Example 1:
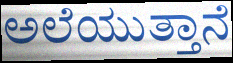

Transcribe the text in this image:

ಅಲೆಯುತ್ತಾನೆ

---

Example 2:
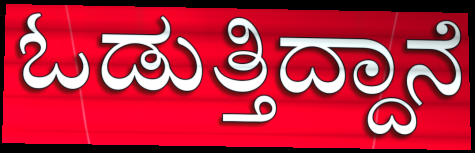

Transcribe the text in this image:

ಓಡುತ್ತಿದ್ದಾನೆ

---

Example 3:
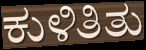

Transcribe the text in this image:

ಕುಳಿತಿತು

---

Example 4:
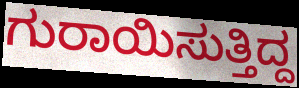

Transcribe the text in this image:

ಗುರಾಯಿಸುತ್ತಿದ್ದ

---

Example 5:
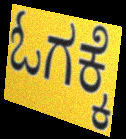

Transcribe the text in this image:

ಓಗಕ್ಕೆ